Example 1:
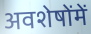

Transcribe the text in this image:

अवशेषोंमें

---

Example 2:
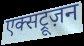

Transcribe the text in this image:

एक्सट्रूज़न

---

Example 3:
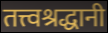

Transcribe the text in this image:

तत्त्वश्रद्धानी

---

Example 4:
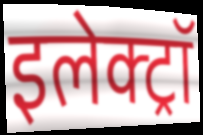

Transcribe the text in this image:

इलेक्ट्रॉ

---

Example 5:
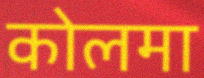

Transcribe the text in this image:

कोलमा